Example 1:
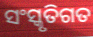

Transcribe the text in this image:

ସଂସ୍କୃତିଗତ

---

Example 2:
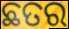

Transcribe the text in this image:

ଛତର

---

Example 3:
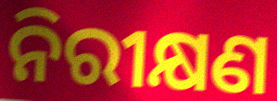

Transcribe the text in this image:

ନିରୀକ୍ଷଣ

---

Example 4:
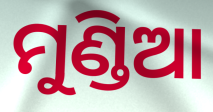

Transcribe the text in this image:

ମୁଣ୍ଡିଆ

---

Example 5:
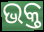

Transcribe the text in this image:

ଭକ୍ତ